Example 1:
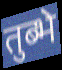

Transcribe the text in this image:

तुब्भे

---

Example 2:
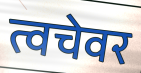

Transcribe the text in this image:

त्वचेवर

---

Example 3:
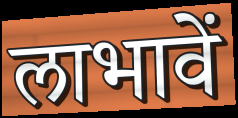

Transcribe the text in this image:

लाभावें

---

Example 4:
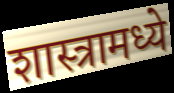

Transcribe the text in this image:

शास्त्रामध्ये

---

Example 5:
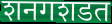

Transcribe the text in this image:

शनगशडत